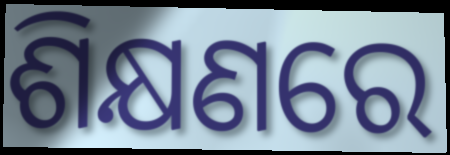
ଶିକ୍ଷଣରେ